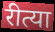
रीत्या